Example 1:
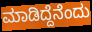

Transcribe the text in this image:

ಮಾಡಿದ್ದೆನೆಂದು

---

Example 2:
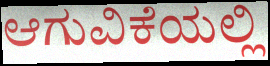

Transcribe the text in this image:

ಆಗುವಿಕೆಯಲ್ಲಿ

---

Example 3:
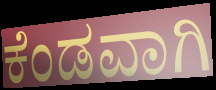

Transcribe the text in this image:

ಕೆಂಡವಾಗಿ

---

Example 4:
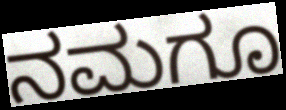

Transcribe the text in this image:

ನಮಗೂ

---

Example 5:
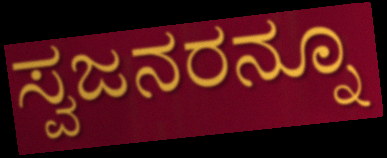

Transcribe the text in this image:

ಸ್ವಜನರನ್ನೂ